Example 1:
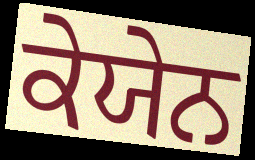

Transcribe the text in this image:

ਕੇਯੇਨ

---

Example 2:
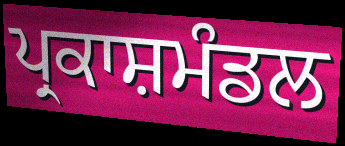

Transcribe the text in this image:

ਪ੍ਰਕਾਸ਼ਮੰਡਲ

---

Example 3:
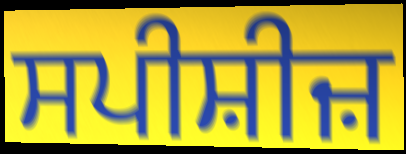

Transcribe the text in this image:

ਸਪੀਸ਼ੀਜ਼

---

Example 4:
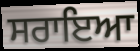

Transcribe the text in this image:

ਸਰਾਇਆ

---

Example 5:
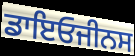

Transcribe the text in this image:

ਡਾਇਓਜੀਨਸ